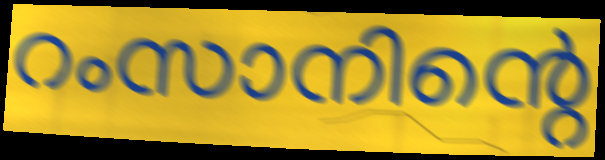
റംസാനിന്റെ